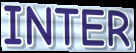
INTER